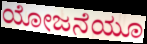
ಯೋಜನೆಯೂ